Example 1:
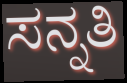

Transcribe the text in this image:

ಸನ್ನತಿ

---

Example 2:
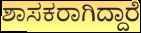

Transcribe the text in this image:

ಶಾಸಕರಾಗಿದ್ದಾರೆ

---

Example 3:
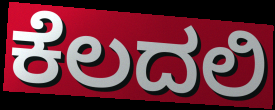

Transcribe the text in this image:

ಕೆಲದಲಿ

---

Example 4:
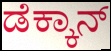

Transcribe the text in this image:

ಡೆಕ್ಕಾನ್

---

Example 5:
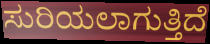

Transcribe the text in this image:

ಸುರಿಯಲಾಗುತ್ತಿದೆ